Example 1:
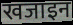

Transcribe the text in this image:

खजाइन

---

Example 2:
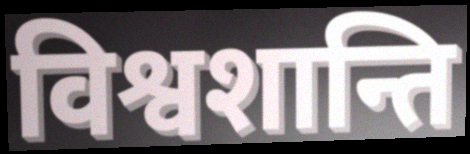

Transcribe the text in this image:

विश्वशान्ति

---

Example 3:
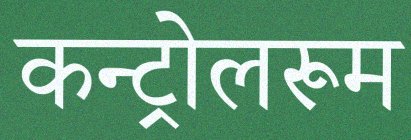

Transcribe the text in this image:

कन्ट्रोलरूम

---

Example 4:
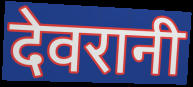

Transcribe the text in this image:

देवरानी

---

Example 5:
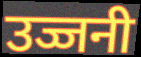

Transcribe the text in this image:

उज्जनी